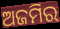
ଅଜମିର